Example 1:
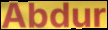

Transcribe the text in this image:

Abdur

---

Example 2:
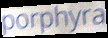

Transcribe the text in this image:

porphyra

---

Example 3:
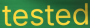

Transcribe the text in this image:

tested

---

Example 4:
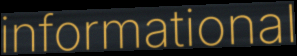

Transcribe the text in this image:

informational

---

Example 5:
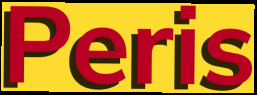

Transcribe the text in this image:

Peris